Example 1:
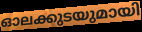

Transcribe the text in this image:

ഓലക്കുടയുമായി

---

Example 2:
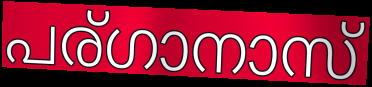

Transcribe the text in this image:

പര്ഗാനാസ്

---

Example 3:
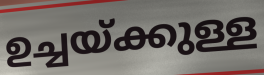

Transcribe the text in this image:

ഉച്ചയ്ക്കുള്ള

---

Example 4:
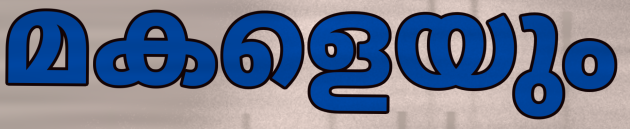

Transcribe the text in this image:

മകളെയും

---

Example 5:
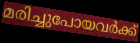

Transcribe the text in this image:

മരിച്ചുപോയവർക്ക്